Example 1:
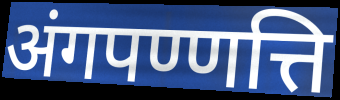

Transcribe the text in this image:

अंगपण्णत्ति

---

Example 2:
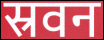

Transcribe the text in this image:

स्रवन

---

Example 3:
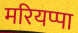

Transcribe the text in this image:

मरियप्पा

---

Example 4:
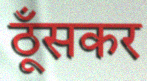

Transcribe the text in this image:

ठूँसकर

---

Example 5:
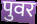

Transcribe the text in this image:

पुवर